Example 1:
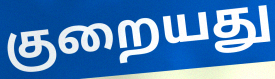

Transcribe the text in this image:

குறையது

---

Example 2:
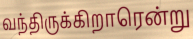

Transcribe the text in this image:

வந்திருக்கிறாரென்று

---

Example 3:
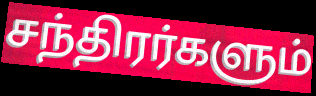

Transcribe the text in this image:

சந்திரர்களும்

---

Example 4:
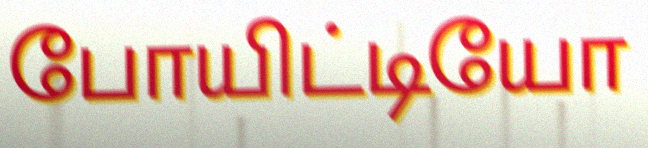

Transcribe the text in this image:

போயிட்டியோ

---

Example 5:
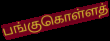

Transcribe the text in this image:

பங்குகொள்ளத்